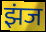
झंज